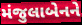
મંજુલાબેનને